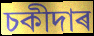
চকীদাৰ